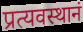
प्रत्यवस्थानं